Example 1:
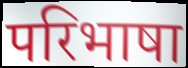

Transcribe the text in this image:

परिभाषा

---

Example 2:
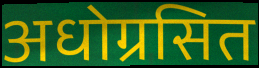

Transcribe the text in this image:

अधोग्रसित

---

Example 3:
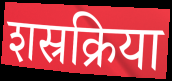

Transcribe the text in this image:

शस्रक्रिया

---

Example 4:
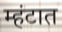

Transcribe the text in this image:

म्हंटात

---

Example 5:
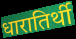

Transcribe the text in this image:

धारातिर्थी